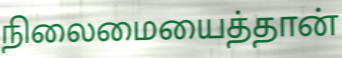
நிலைமையைத்தான்